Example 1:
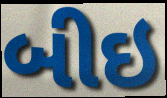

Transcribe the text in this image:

બીઇ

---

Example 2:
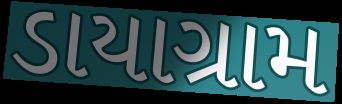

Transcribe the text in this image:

ડાયાગ્રામ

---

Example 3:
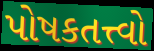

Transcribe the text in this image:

પોષકતત્ત્વો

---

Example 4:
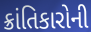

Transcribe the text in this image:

ક્રાંતિકારોની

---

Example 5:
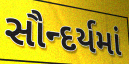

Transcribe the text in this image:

સૌન્દર્યમાં